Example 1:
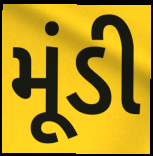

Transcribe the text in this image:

મૂંડી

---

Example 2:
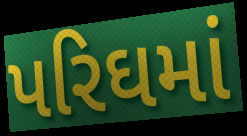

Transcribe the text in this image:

પરિઘમાં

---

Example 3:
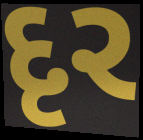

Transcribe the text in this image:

દૃર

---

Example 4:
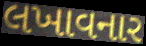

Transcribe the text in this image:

લખાવનાર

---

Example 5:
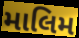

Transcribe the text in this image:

માલિમ